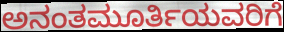
ಅನಂತಮೂರ್ತಿಯವರಿಗೆ